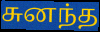
சுனந்த